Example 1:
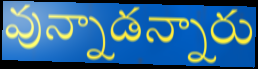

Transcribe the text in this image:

వున్నాడన్నారు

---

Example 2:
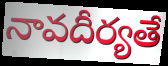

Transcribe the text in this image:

నావదీర్యతే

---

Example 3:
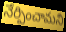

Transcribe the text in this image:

నేర్పించామని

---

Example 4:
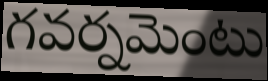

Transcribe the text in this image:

గవర్నమెంటు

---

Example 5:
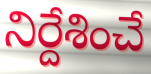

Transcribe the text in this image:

నిర్దేశించే